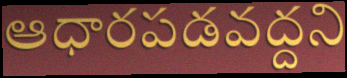
ఆధారపడవద్దని